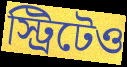
স্ট্রিটেও